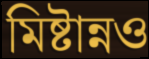
মিষ্টান্নও